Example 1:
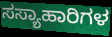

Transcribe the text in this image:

ಸಸ್ಯಾಹಾರಿಗಳ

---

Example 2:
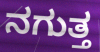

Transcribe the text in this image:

ನಗುತ್ತ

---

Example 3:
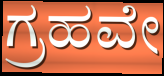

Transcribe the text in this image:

ಗ್ರಹವೇ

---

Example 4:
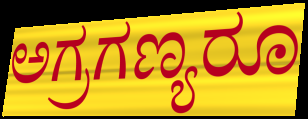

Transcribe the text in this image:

ಅಗ್ರಗಣ್ಯರೂ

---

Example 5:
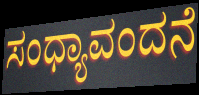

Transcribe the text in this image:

ಸಂಧ್ಯಾವಂದನೆ